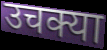
उचक्या